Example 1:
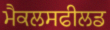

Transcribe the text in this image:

ਮੈਕਲਸਫੀਲਡ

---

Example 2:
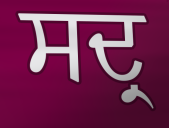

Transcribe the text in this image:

ਸਦ੍ਰ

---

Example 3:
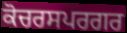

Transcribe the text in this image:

ਕੋਚਰਸਪਰਗਰ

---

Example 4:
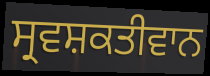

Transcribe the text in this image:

ਸ੍ਰਵਸ਼ਕਤੀਵਾਨ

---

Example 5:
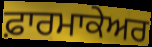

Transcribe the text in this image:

ਫ਼ਾਰਮਾਕੇਅਰ